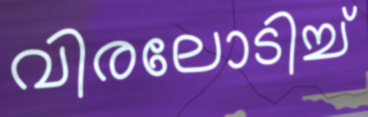
വിരലോടിച്ച്